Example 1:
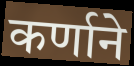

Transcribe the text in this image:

कर्णाने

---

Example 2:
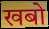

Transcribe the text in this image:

खबो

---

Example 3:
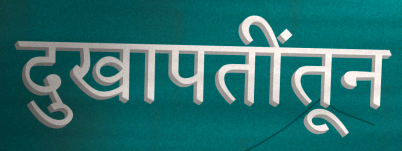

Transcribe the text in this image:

दुखापतींतून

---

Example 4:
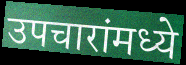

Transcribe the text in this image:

उपचारांमध्ये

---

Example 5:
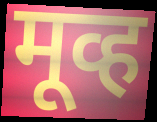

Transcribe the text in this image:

मूव्ह